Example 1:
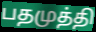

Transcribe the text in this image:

பதமுத்தி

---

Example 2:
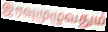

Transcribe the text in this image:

இரவுமுழுவதும்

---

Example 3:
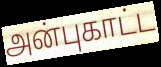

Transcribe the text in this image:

அன்புகாட்ட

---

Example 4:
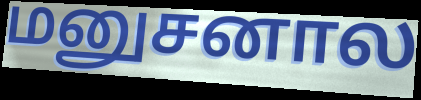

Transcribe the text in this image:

மனுசனால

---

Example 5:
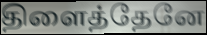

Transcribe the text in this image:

திளைத்தேனே